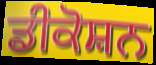
ਡੀਕੋਸ਼ਨ